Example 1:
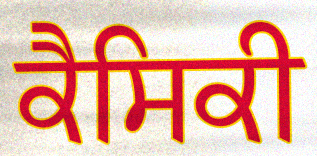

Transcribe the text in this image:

ਕੈਸਿਕੀ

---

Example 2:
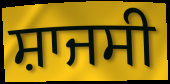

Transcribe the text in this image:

ਸ਼ਾਜਸੀ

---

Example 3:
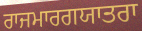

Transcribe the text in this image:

ਰਾਜਮਾਰਗਯਾਤਰਾ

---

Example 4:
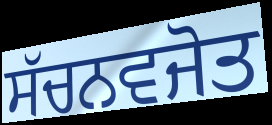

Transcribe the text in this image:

ਸੱਚਨਵਜੋਤ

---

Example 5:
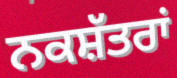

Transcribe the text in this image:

ਨਕਸ਼ੱਤਰਾਂ